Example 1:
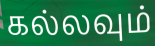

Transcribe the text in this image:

கல்லவும்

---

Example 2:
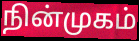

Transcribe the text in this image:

நின்முகம்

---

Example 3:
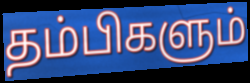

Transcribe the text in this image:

தம்பிகளும்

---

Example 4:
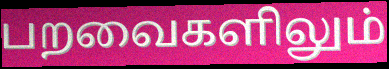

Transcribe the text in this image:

பறவைகளிலும்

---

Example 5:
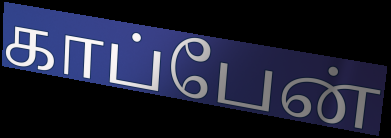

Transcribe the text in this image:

காப்பேன்